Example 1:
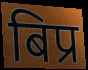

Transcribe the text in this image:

बिप्र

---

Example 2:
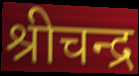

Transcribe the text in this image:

श्रीचन्द्र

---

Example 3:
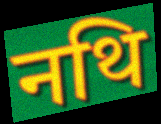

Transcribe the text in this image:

नथि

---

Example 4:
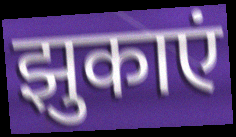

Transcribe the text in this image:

झुकाएं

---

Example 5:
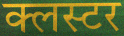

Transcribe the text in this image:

क्‍लस्‍टर